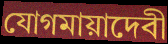
যোগমায়াদেবী